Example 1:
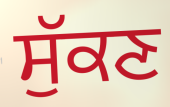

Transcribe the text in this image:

ਸੁੱਕਣ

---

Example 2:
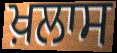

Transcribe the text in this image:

ਖ਼ਲਾਸ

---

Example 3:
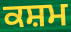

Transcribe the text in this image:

ਕਸ਼ਮ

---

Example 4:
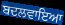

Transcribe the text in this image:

ਬਦਲਵਾਇਆ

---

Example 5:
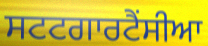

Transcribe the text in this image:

ਸਟਟਗਾਰਟੈਂਸੀਆ